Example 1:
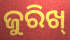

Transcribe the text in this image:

ଜୁରିଖ୍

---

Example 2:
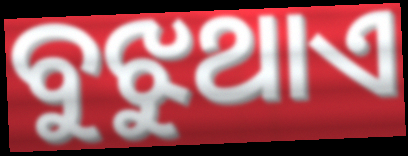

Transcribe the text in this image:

ବୁଝୁଥାଏ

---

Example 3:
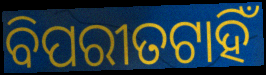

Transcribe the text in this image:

ବିପରୀତଟାହିଁ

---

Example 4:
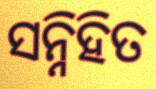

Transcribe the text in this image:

ସନ୍ନିହିତ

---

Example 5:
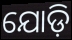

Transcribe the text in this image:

ଯୋଡ଼ି